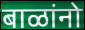
बाळांनो